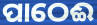
ପାଠେଈ